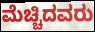
ಮೆಚ್ಚಿದವರು